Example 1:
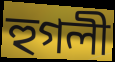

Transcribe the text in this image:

হুগলী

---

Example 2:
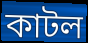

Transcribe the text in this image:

কাটল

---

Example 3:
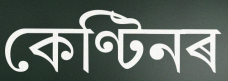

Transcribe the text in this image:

কেণ্টিনৰ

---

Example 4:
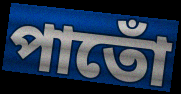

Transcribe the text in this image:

পাতোঁ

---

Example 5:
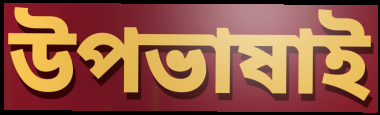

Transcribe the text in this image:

উপভাষাই